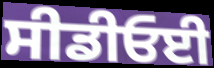
ਸੀਡੀਓਈ